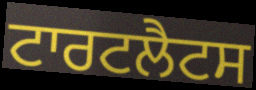
ਟਾਰਟਲੈਟਸ